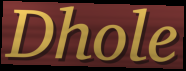
Dhole